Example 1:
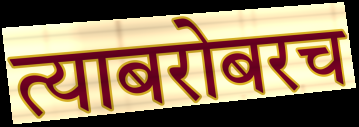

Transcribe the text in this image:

त्याबरोबरच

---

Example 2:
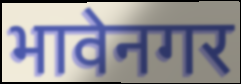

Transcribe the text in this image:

भावेनगर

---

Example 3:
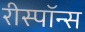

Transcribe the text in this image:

रीस्पॉन्स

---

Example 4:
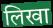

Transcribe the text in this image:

लिखा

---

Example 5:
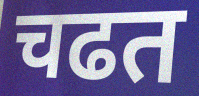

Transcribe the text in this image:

चढत